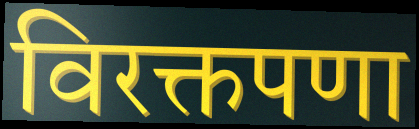
विरक्तपणा